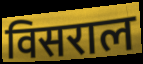
विसराल